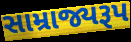
સામ્રાજ્યરૂપ